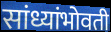
सांध्यांभोवती